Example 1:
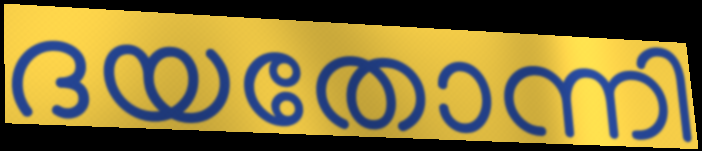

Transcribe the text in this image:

ദയതോന്നി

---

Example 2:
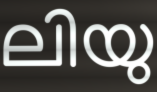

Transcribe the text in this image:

ലിയു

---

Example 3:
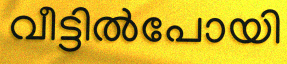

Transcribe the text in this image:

വീട്ടിൽപോയി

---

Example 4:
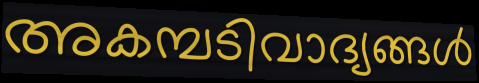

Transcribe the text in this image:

അകമ്പടിവാദ്യങ്ങൾ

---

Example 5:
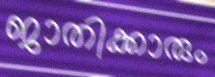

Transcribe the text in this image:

ജാതിക്കാരും